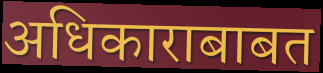
अधिकाराबाबत